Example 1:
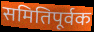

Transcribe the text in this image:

समितिपूर्वक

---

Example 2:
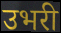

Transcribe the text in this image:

उभरी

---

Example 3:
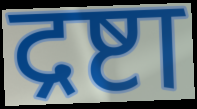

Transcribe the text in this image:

द्रष्टा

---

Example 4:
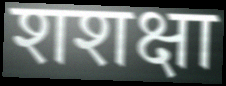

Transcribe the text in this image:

शशक्षा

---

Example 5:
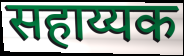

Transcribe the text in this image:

सहाय्यक